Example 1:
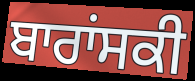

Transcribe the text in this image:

ਬਾਰਾਂਸਕੀ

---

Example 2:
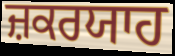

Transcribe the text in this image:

ਜ਼ਕਰਯਾਹ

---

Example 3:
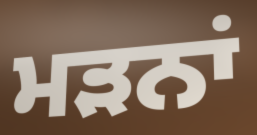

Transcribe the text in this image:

ਮੜਨਾਂ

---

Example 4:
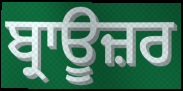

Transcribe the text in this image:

ਬ੍ਰਾਊਜ਼ਰ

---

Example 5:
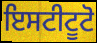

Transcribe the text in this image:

ਇਸਟੀਟੂਟੋ